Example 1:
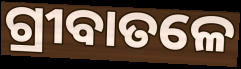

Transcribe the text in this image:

ଗ୍ରୀବାତଳେ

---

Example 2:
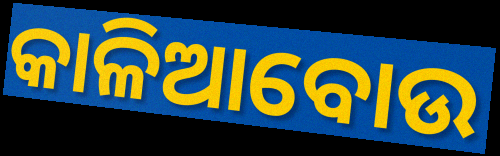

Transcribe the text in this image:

କାଳିଆବୋଉ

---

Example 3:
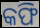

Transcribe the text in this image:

କଫି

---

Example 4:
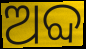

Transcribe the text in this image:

ଅବ୍ଦ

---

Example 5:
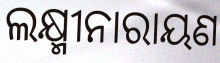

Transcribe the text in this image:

ଲକ୍ଷ୍ମୀନାରାୟଣ